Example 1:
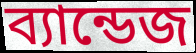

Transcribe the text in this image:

ব্যান্ডেজ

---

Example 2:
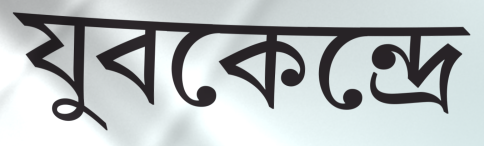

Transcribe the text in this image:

যুবকেন্দ্রে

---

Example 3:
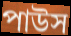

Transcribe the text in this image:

পাউস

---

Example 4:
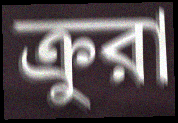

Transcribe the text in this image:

ক্রুরা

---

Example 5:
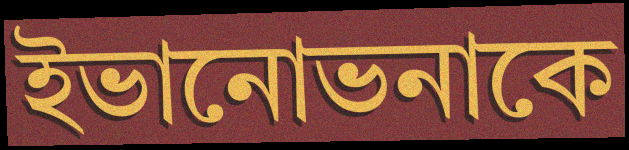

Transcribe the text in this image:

ইভানোভনাকে